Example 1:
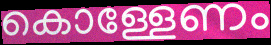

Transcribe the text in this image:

കൊള്ളേണം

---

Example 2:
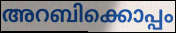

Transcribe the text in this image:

അറബിക്കൊപ്പം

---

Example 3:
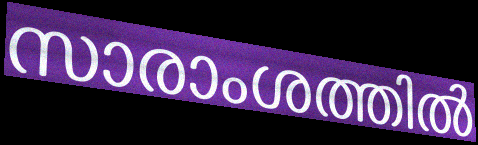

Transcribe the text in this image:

സാരാംശത്തിൽ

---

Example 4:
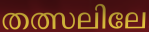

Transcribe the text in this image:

തത്സലിലേ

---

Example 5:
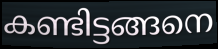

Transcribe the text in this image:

കണ്ടിട്ടങ്ങനെ